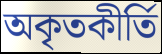
অকৃতকীর্তি